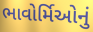
ભાવોર્મિઓનું